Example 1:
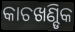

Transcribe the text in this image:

କାଚଖଣ୍ଡିକ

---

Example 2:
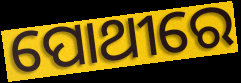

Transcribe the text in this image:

ପୋଥୀରେ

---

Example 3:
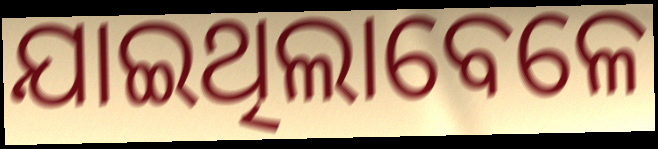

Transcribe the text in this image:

ଯାଇଥିଲାବେଳେ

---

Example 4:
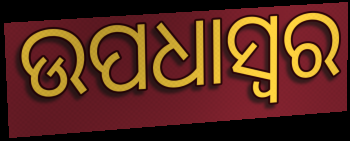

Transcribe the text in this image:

ଉପଧାସ୍ୱର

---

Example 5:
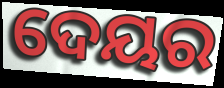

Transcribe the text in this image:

ଦେୟର